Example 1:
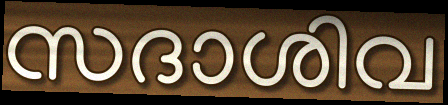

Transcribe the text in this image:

സദാശിവ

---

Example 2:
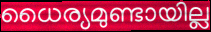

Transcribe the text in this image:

ധൈര്യമുണ്ടായില്ല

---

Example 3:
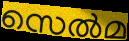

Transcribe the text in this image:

സെൽമ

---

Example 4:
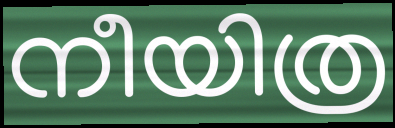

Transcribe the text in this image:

നീയിത്ര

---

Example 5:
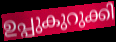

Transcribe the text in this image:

ഉപ്പുകുറുക്കി